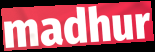
madhur